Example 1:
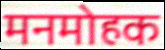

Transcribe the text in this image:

मनमोहक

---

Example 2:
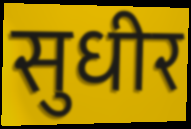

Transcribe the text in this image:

सुधीर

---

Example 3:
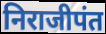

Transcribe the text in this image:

निराजीपंत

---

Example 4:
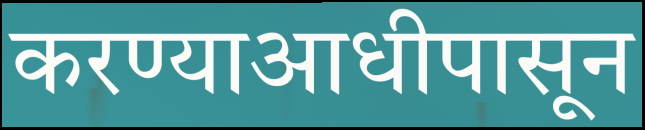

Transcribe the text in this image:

करण्याआधीपासून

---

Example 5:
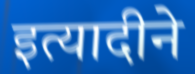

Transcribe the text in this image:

इत्यादीने